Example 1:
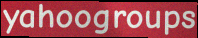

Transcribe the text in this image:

yahoogroups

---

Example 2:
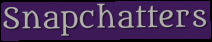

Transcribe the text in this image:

Snapchatters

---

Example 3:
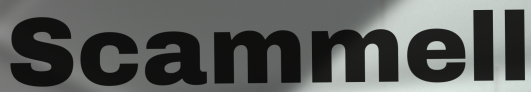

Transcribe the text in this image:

Scammell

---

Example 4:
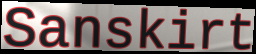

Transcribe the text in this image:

Sanskirt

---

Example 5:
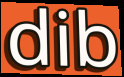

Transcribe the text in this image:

dib